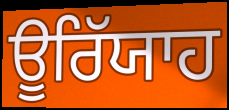
ਊਰਿੱਯਾਹ